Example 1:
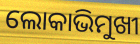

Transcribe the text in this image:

ଲୋକାଭିମୁଖୀ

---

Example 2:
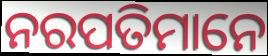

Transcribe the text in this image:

ନରପତିମାନେ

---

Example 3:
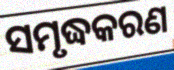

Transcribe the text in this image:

ସମୃଦ୍ଧକରଣ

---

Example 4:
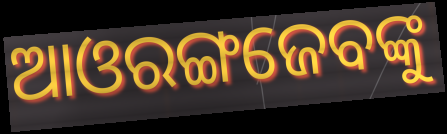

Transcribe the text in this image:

ଆଓରଙ୍ଗଜେବଙ୍କୁ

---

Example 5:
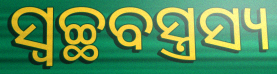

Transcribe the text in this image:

ସ୍ଵଚ୍ଛବସ୍ତ୍ରସ୍ୟ